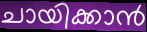
ചായിക്കാൻ